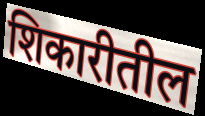
शिकारीतील